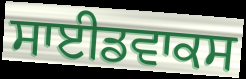
ਸਾਈਡਵਾਕਸ